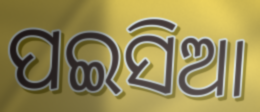
ପଇସିଆ